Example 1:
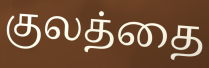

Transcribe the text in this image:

குலத்தை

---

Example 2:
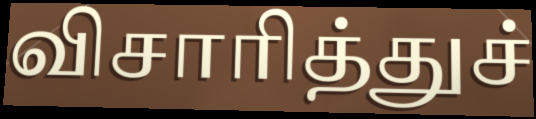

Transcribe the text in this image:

விசாரித்துச்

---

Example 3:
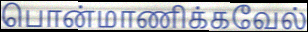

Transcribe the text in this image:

பொன்மாணிக்கவேல்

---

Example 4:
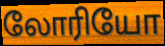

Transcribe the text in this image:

லோரியோ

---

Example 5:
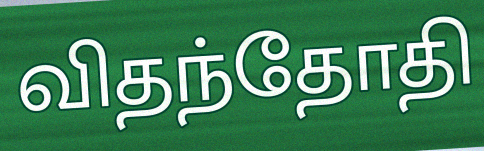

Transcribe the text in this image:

விதந்தோதி